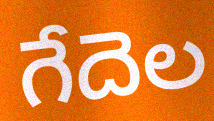
గేదెల